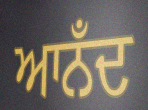
ਆਨਁਦ